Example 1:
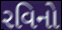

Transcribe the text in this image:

રવિનો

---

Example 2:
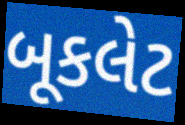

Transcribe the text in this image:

બૂકલેટ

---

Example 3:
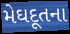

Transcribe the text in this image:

મેઘદૂતના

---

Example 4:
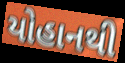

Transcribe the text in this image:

યોહાનથી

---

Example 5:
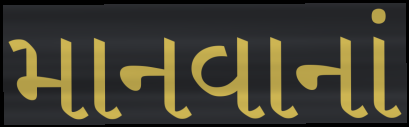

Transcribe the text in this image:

માનવાનાં